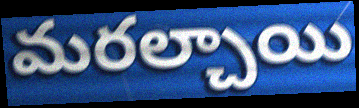
మరల్చాయి